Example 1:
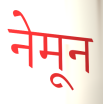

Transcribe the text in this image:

नेमून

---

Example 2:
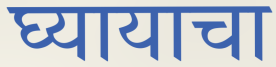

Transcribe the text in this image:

घ्यायाचा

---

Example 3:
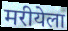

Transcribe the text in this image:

मरीयेला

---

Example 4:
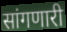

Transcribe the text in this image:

सांगणारी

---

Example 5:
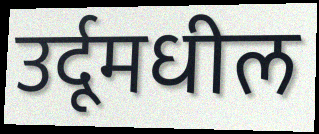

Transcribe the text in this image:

उर्दूमधील